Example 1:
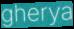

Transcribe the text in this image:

gherya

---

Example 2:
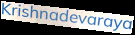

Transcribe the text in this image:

Krishnadevaraya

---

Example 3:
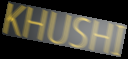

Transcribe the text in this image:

KHUSHI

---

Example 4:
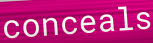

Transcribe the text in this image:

conceals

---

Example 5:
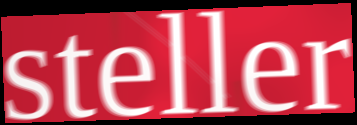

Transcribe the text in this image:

steller